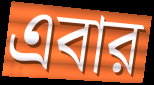
এবার